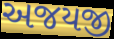
અજયજી